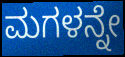
ಮಗಳನ್ನೇ